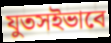
যুতসইভাবে